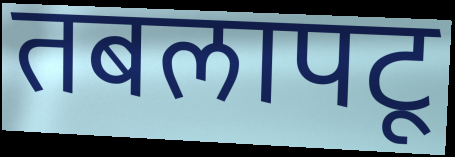
तबलापटू